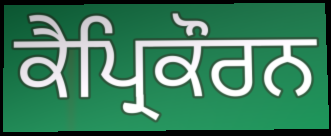
ਕੈਪ੍ਰਿਕੌਰਨ